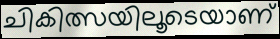
ചികിത്സയിലൂടെയാണ്